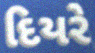
દિયરે